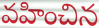
వహించిన